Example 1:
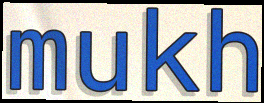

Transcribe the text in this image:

mukh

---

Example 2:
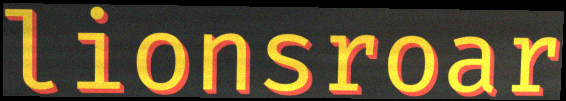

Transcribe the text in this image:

lionsroar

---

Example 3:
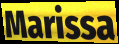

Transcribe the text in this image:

Marissa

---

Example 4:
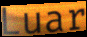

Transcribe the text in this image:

Luar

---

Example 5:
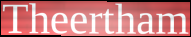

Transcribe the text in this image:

Theertham